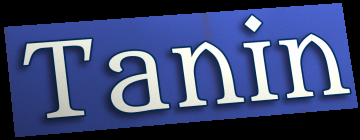
Tanin